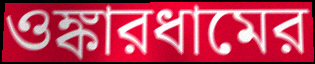
ওঙ্কারধামের